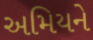
અમિયને